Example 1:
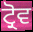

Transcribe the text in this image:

ਟ੍ਰੋਵ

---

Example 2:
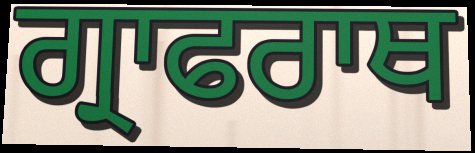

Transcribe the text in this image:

ਗ੍ਰਾਫਰਾਥ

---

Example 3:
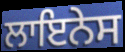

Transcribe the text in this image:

ਲਾਇਨੇਸ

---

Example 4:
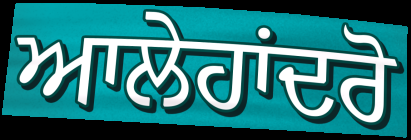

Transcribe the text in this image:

ਆਲੇਹਾਂਦਰੋ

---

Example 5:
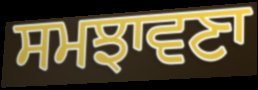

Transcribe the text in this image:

ਸਮਝਾਵਣਾ